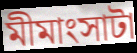
মীমাংসাটা